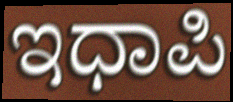
ಇಧಾಪಿ